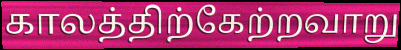
காலத்திற்கேற்றவாறு